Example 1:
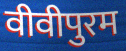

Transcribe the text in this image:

वीवीपुरम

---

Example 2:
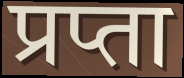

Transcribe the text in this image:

प्रप्ता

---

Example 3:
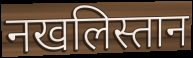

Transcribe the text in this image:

नखलिस्तान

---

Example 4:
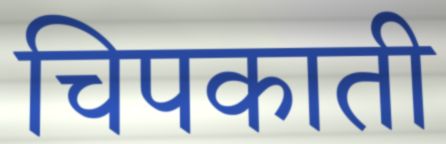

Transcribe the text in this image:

चिपकाती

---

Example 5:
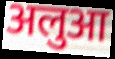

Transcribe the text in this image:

अलुआ